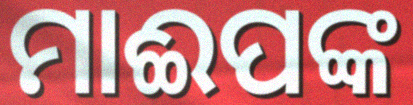
ମାଈପଙ୍କ